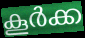
കൂർക്ക